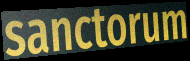
sanctorum